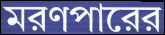
মরণপারের